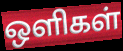
ஒளிகள்